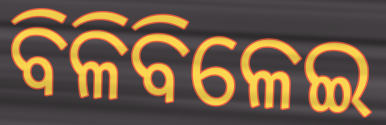
ବିଳିବିଳେଇ